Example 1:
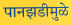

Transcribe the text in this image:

पानझडीमुळे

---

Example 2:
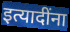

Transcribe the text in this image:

इत्यादींना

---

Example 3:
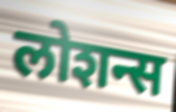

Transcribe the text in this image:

लोशन्स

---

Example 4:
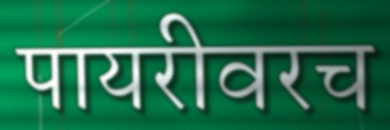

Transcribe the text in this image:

पायरीवरच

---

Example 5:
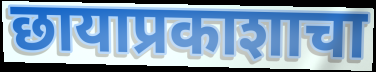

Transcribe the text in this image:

छायाप्रकाशाचा